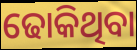
ଢୋକିଥିବା